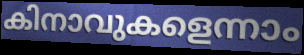
കിനാവുകളെന്നാം